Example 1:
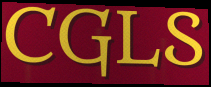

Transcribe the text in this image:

CGLS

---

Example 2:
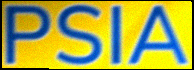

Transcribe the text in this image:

PSIA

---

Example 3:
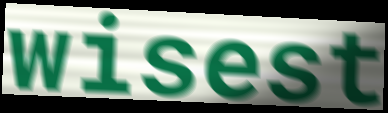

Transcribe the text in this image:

wisest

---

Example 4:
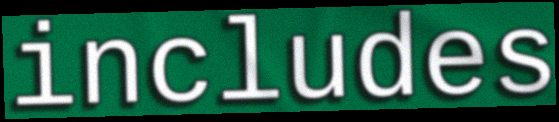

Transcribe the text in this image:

includes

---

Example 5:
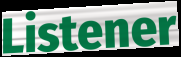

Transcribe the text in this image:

Listener